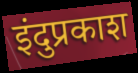
इंदुप्रकाश